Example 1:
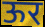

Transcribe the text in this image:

ऊर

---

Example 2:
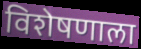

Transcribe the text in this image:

विशेषणाला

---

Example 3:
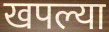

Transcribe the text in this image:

खपल्या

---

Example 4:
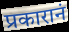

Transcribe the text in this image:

प्रकारानं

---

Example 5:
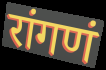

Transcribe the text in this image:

रांगणं